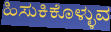
ಹಿಸುಕಿಕೊಳ್ಳುವ